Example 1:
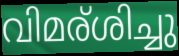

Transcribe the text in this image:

വിമര്ശിച്ചു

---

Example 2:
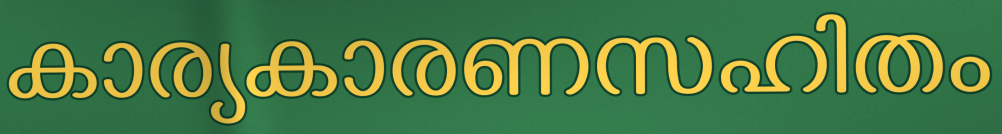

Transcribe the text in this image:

കാര്യകാരണസഹിതം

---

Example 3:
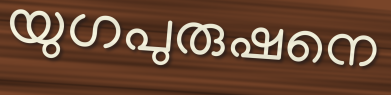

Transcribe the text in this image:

യുഗപുരുഷനെ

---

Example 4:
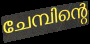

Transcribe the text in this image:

ചേമ്പിന്റെ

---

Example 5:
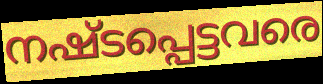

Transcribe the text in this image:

നഷ്ടപ്പെട്ടവരെ